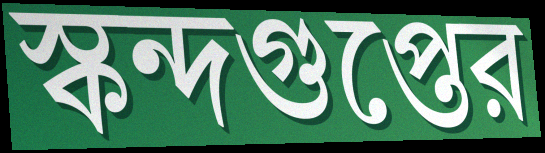
স্কন্দগুপ্তের